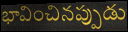
భావించినప్పుడు